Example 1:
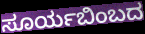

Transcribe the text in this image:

ಸೂರ್ಯಬಿಂಬದ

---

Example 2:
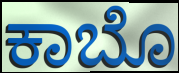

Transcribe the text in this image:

ಕಾಬೊ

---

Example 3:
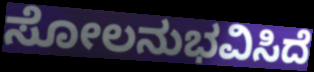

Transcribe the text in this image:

ಸೋಲನುಭವಿಸಿದೆ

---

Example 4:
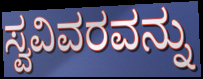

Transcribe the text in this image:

ಸ್ವವಿವರವನ್ನು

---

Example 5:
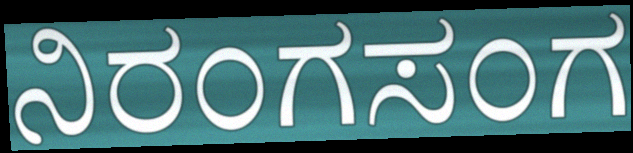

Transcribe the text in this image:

ನಿರಂಗಸಂಗ